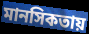
মানসিকতায়